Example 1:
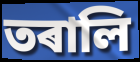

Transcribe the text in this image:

তৰালি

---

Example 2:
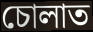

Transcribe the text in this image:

চোলাত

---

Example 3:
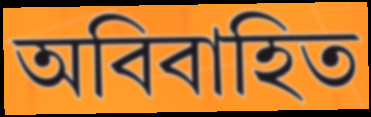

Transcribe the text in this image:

অবিবাহিত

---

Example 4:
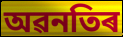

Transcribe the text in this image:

অৱনতিৰ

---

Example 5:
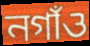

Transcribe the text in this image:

নগাঁও